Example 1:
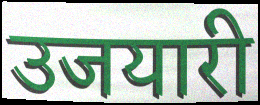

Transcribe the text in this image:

उजयारी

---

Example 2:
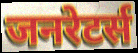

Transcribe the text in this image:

जनरेटर्स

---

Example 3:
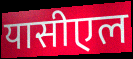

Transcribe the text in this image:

यासीएल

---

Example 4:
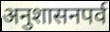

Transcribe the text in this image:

अनुशासनपर्व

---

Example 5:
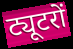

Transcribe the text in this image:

ट्यूटरों